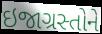
ઇજાગ્રસ્તોને